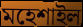
মহেশাইল